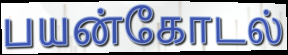
பயன்கோடல்